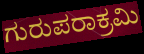
ಗುರುಪರಾಕ್ರಮಿ